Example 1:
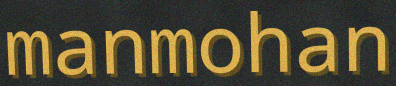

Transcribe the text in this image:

manmohan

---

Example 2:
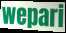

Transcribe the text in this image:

wepari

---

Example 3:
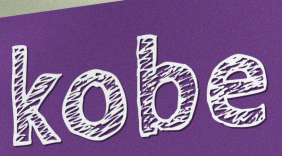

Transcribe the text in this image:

kobe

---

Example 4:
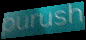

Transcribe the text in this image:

purush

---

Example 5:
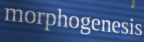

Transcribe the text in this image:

morphogenesis